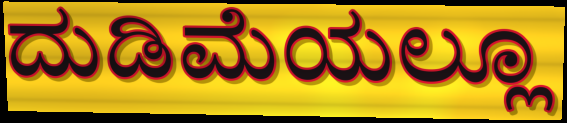
ದುಡಿಮೆಯಲ್ಲೂ